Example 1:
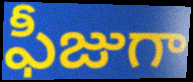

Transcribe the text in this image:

ఫీజుగా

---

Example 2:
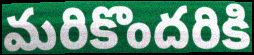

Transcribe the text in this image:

మరికొందరికి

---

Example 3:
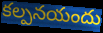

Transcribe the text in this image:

కల్పనయందు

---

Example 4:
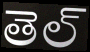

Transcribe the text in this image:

తెల్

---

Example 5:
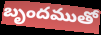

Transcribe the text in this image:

బృందముతో